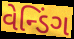
વેન્ડિંગ